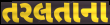
તરલતાના